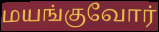
மயங்குவோர்